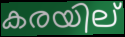
കരയില്